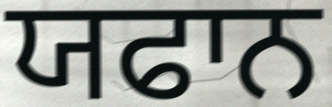
ਯਫਾਨ